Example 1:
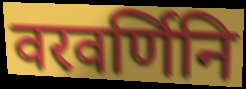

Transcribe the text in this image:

वरवर्णिनि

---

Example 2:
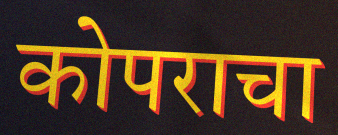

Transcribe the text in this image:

कोपराचा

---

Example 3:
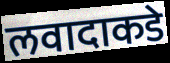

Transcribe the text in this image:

लवादाकडे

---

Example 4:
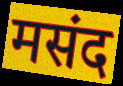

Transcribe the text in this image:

मसंद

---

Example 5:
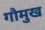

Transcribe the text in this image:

गौमुख